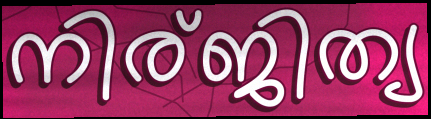
നിര്ജിത്യ